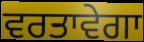
ਵਰਤਾਵੇਗਾ